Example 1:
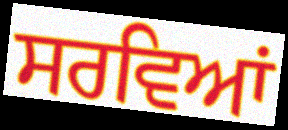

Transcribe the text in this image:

ਸਰਵਿਆਂ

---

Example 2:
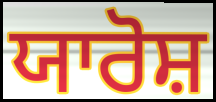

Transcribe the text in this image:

ਯਾਰੋਸ਼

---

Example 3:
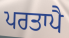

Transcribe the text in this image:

ਪਰਤਾਪੈ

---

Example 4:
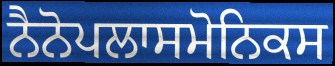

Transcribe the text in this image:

ਨੈਨੋਪਲਾਸਮੋਨਿਕਸ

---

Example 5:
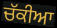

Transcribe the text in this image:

ਚੱਕੀਆ